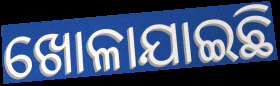
ଖୋଳାଯାଇଛି